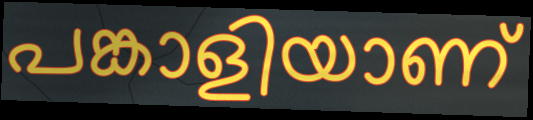
പങ്കാളിയാണ്